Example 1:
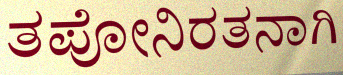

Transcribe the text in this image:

ತಪೋನಿರತನಾಗಿ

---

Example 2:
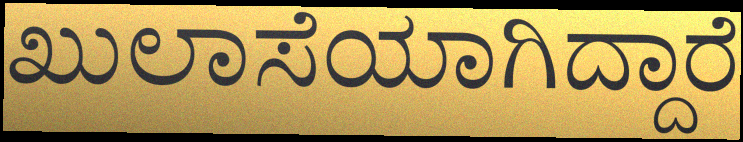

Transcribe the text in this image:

ಖುಲಾಸೆಯಾಗಿದ್ದಾರೆ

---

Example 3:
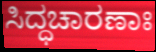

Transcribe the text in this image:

ಸಿದ್ಧಚಾರಣಾಃ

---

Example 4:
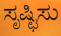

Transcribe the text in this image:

ಸೃಷ್ಟಿಸು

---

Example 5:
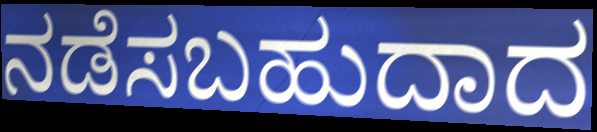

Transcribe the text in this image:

ನಡೆಸಬಹುದಾದ